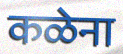
कळेना